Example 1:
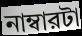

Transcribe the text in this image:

নাম্বারটা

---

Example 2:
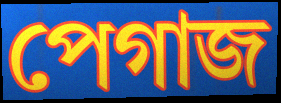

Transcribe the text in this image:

পেগাজ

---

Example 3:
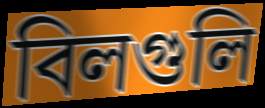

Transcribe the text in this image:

বিলগুলি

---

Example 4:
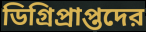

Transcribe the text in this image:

ডিগ্রিপ্রাপ্তদের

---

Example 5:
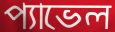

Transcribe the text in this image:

প্যাভেল